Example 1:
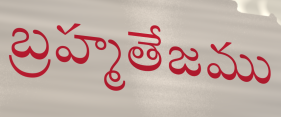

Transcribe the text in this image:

బ్రహ్మతేజము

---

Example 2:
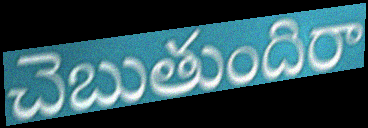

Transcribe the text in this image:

చెబుతుందిరా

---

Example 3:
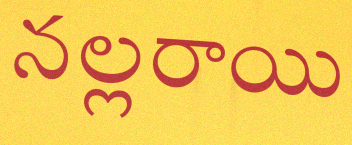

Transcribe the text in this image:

నల్లరాయి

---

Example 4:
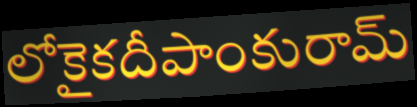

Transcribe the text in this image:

లోకైకదీపాంకురామ్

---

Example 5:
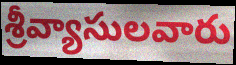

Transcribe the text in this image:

శ్రీవ్యాసులవారు